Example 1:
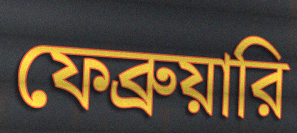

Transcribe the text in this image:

ফেব্রুয়ারি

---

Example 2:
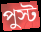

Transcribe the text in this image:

পুস্ট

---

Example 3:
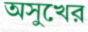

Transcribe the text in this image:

অসুখের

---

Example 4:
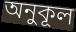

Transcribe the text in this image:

অনুকূল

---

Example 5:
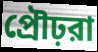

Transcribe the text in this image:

প্রৌঢ়রা